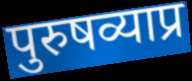
पुरुषव्याप्र